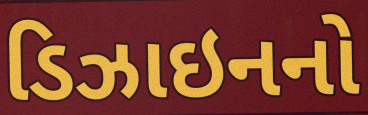
ડિઝાઇનનો